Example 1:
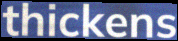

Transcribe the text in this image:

thickens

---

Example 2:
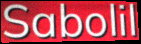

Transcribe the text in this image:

Sabolil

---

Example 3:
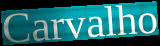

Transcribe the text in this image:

Carvalho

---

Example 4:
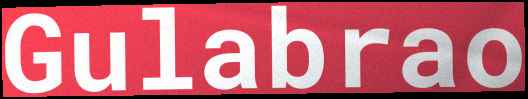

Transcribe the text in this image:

Gulabrao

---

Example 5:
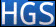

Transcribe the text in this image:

HGS